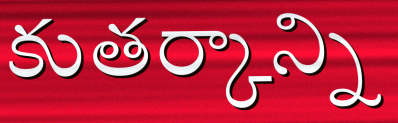
కుతర్కాన్ని